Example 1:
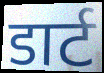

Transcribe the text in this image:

डार्ट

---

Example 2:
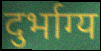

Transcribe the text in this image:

दुर्भाग्य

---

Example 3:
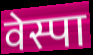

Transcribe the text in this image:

वेस्पा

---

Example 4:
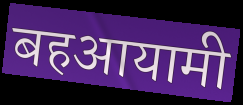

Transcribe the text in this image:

बहआयामी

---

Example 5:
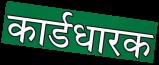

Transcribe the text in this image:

कार्डधारक